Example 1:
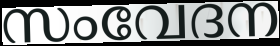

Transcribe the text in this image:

സംവേദന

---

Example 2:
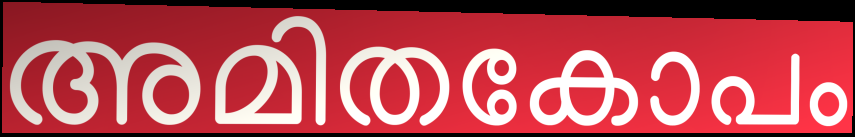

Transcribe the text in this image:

അമിതകോപം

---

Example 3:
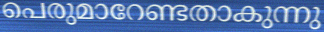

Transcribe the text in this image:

പെരുമാറേണ്ടതാകുന്നു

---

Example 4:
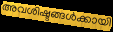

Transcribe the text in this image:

അവശിഷ്ടങ്ങൾക്കായി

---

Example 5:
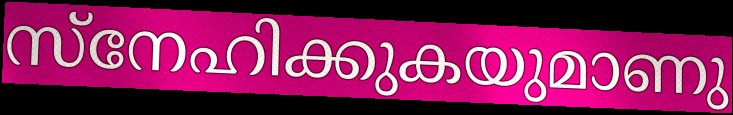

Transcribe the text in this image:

സ്നേഹിക്കുകയുമാണു